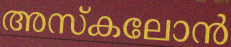
അസ്കലോൻ